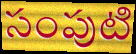
సంపుటి